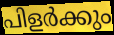
പിളർക്കും